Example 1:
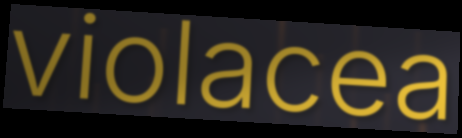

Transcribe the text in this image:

violacea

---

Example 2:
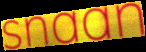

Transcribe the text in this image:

snaan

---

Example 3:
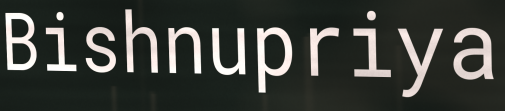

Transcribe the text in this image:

Bishnupriya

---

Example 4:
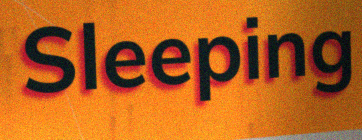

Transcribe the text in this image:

Sleeping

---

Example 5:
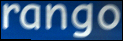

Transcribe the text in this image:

rango